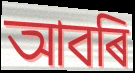
আবৰি